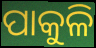
ପାକୁଳି